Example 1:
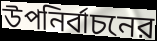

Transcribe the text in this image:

উপনির্বাচনের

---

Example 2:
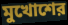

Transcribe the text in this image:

মুখোশের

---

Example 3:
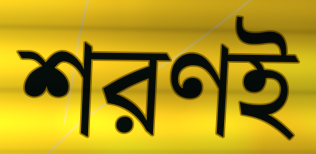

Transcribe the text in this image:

শরণই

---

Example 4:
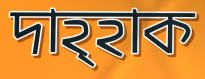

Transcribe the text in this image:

দাহ্হাক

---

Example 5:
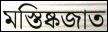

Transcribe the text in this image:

মস্তিষ্কজাত